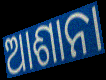
ଆଶାନା